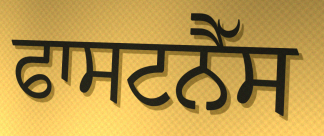
ਫਾਸਟਨੈੱਸ